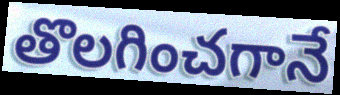
తొలగించగానే